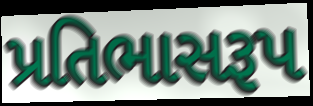
પ્રતિભાસરૂપ